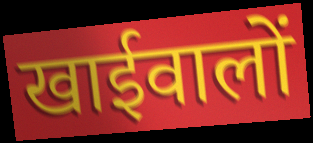
खाईवालों